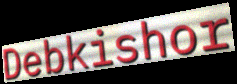
Debkishor